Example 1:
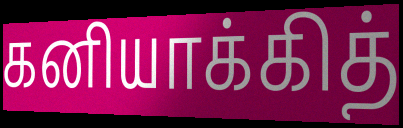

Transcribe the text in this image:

கனியாக்கித்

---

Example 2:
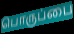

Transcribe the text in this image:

பொருப்பை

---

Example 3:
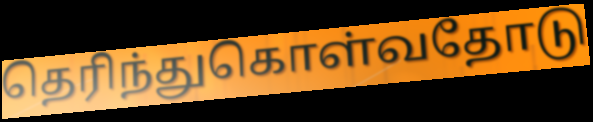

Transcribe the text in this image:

தெரிந்துகொள்வதோடு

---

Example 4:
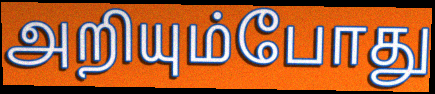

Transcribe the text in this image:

அறியும்போது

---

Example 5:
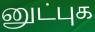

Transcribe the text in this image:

னுட்புக